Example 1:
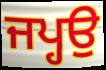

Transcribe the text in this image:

ਜਪ੍ਹਉ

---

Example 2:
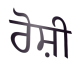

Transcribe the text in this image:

ਰੋਸ਼ੀ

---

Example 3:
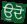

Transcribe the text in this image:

ਉਦੋ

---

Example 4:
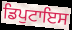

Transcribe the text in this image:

ਡਿਪੁਟਾਇਸ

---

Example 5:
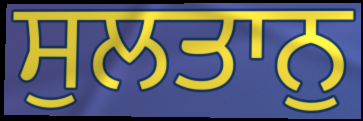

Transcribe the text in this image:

ਸੁਲਤਾਨੁ